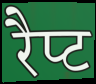
रैप्ट